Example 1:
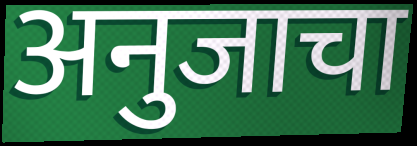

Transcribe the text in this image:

अनुजाचा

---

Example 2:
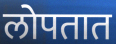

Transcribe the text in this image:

लोपतात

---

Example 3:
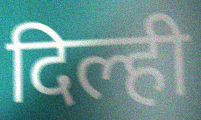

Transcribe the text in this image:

दिल्ही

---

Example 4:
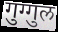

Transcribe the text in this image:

गुग्गुल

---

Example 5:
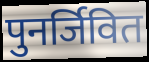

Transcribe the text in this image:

पुनर्जिवित